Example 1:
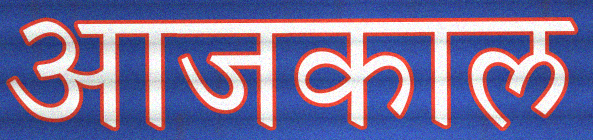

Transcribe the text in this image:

आजकाल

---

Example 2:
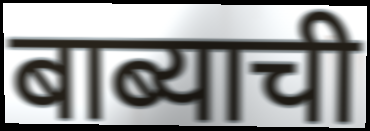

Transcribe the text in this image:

बाब्याची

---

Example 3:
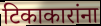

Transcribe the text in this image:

टिकाकारांना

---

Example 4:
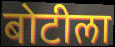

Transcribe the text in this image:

बोटीला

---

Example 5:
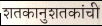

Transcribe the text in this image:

शतकानुशतकांची